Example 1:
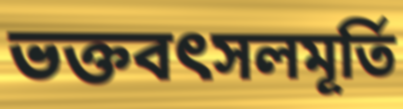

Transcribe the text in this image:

ভক্তবৎসলমূর্তি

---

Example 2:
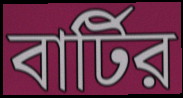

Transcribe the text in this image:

বার্টির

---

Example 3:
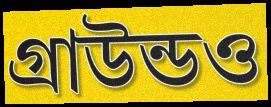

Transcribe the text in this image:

গ্রাউন্ডও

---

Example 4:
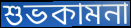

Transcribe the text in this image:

শুভকামনা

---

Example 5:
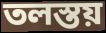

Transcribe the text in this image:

তলস্তয়